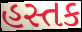
હસ્તક